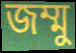
জম্মু